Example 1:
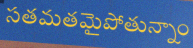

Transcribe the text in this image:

సతమతమైపోతున్నాం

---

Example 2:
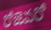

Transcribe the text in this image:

రోజెవరో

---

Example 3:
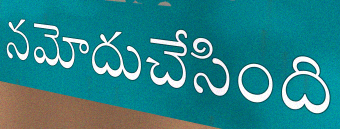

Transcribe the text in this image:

నమోదుచేసింది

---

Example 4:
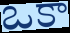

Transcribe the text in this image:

ఒకా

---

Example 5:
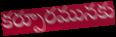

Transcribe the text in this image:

కర్పూరమునకు